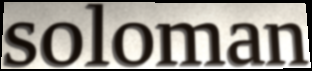
soloman